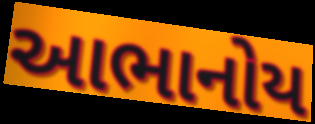
આભાનોય